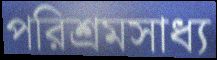
পরিশ্রমসাধ্য